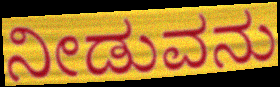
ನೀಡುವನು